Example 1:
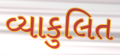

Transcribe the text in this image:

વ્યાકુલિત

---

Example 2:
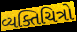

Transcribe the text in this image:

વ્યક્તિચિત્રો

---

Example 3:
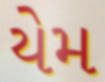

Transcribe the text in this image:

યેમ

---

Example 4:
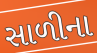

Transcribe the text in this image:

સાળીના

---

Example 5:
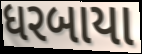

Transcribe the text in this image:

ધરબાયા